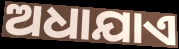
ଅଧାଯାଏ